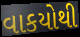
વાકયોથી